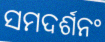
ସମଦର୍ଶନଂ